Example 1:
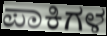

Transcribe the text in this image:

ಪಾಕಿಗಳ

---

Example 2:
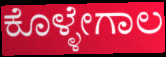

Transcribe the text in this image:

ಕೊಳ್ಳೇಗಾಲ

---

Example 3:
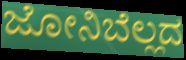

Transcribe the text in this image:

ಜೋನಿಬೆಲ್ಲದ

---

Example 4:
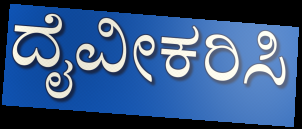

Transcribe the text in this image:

ದೈವೀಕರಿಸಿ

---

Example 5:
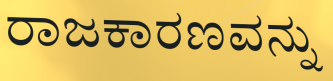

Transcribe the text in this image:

ರಾಜಕಾರಣವನ್ನು